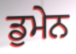
ਡੁਮੇਨ